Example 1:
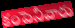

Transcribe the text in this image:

కంపెనీవారు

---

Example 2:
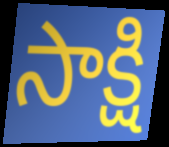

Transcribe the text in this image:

సాక్షి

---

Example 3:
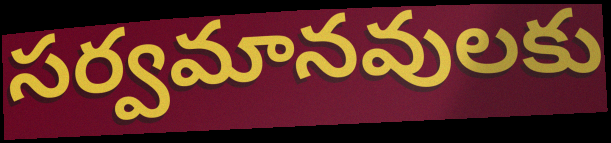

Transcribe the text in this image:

సర్వమానవులకు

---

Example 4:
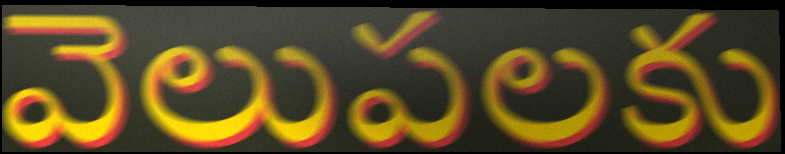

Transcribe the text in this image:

వెలుపలకు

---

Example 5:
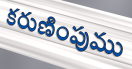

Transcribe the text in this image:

కరుణింపుము